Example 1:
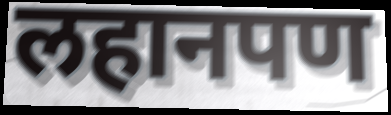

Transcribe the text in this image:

लहानपण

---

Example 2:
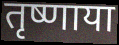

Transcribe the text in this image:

तृष्णाया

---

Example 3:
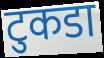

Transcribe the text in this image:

टुकडा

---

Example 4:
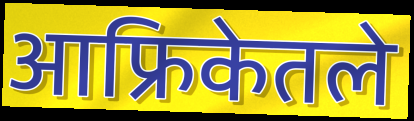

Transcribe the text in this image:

आफ्रिकेतले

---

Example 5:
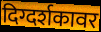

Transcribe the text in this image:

दिग्दर्शकावर